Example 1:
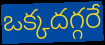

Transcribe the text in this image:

ఒక్కదగ్గరే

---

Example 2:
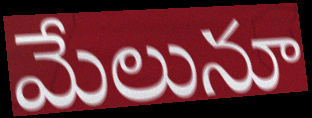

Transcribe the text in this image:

మేలునూ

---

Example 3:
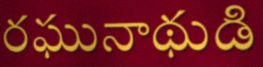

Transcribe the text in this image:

రఘునాథుడి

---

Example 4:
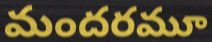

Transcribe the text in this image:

మందరమూ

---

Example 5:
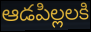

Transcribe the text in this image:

ఆడపిల్లలకి